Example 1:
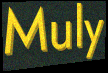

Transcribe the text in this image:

Muly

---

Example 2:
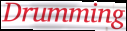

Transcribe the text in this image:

Drumming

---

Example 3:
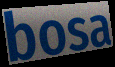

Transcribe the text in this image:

bosa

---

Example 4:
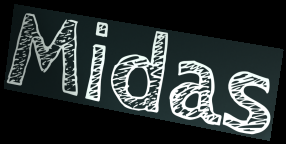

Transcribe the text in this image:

Midas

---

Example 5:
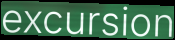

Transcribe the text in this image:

excursion